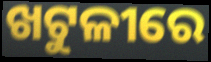
ଖଟୁଳୀରେ